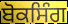
ਬੋਕਸਿੰਗ